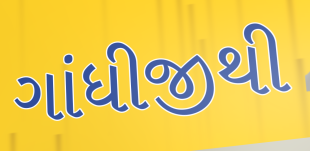
ગાંધીજીથી